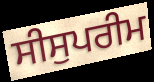
ਸੀਸੁਪਰੀਮ